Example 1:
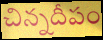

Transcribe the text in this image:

చిన్నదీపం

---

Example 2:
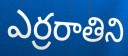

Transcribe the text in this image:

ఎర్రరాతిని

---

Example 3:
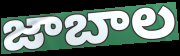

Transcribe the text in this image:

జాబాల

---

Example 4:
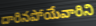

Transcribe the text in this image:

దారినపోయేవారిని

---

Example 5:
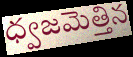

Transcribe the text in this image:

ధ్వజమెత్తిన